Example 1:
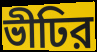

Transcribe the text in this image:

ভীঢির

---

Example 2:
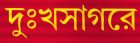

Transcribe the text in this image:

দুঃখসাগরে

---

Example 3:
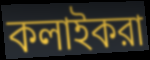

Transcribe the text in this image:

কলাইকরা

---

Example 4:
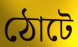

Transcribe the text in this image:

ঠোটে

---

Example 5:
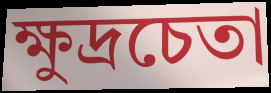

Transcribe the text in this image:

ক্ষুদ্রচেতা